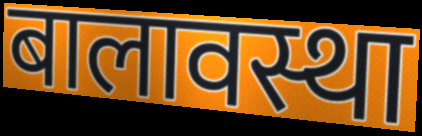
बालावस्था